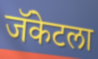
जॅकेटला